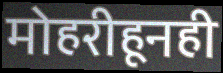
मोहरीहूनही